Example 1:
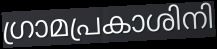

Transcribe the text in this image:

ഗ്രാമപ്രകാശിനി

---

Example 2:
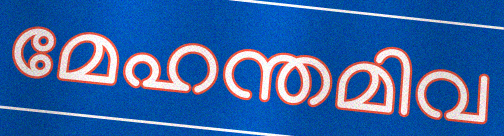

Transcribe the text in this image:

മേഹന്തമിവ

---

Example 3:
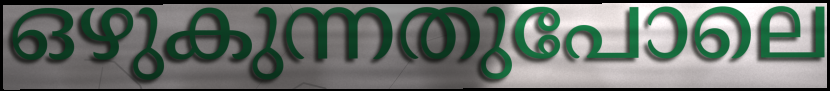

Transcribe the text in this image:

ഒഴുകുന്നതുപോലെ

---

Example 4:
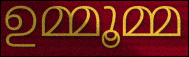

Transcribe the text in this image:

ഉമ്മൂമ്മ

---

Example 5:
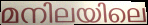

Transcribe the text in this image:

മനിലയിലെ